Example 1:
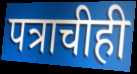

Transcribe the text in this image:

पत्राचीही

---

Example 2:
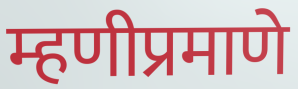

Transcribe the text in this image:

म्हणीप्रमाणे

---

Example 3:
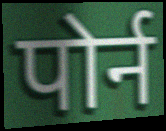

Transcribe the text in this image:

पोर्न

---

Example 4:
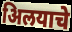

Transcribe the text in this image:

अिलयाचे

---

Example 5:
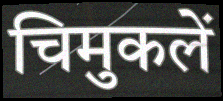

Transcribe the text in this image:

चिमुकलें